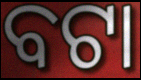
ବଟା